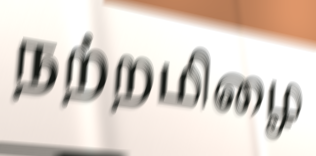
நற்றமிழை